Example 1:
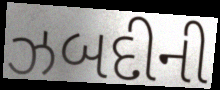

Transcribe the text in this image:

ઝબદીની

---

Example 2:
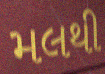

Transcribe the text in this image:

મલથી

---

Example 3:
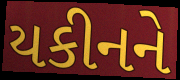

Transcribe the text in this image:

યકીનને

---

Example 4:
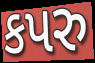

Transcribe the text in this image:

કપરુ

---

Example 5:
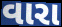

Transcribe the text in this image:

વારા